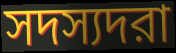
সদস্যদরা